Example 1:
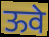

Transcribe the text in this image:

ऊवे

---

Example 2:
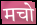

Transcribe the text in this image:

मचो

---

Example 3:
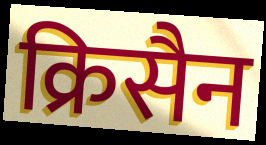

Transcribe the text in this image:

क्रिसैन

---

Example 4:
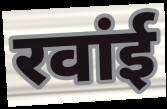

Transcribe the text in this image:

रवांई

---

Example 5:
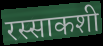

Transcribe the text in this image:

रस्साकशी